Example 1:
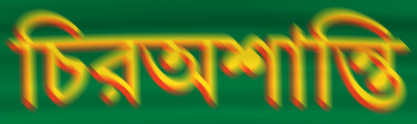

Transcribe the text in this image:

চিরঅশান্তি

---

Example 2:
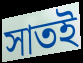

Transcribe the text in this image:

সাতই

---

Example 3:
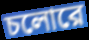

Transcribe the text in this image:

চলোরে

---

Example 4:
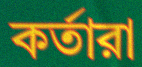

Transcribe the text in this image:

কর্তারা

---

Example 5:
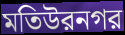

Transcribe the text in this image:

মতিউরনগর